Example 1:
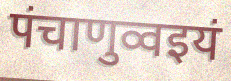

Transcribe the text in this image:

पंचाणुव्वइयं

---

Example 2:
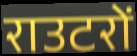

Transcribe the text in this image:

राउटरों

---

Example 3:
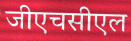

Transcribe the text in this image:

जीएचसीएल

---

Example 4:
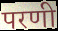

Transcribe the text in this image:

परणी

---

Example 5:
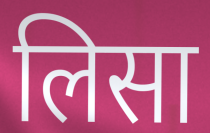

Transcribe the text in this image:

लिसा